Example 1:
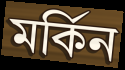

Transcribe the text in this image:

মর্কিন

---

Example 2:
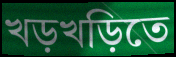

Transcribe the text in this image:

খড়খড়িতে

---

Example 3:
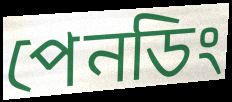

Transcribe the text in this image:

পেনডিং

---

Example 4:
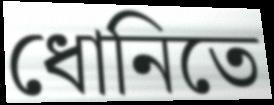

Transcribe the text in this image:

ধোনিতে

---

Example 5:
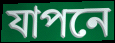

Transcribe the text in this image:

যাপনে